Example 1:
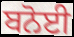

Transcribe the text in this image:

ਬਨੋਈ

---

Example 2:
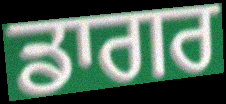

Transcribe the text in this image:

ਡਾਗਰ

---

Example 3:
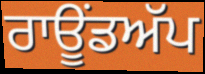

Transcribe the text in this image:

ਰਾਊਂਡਅੱਪ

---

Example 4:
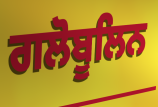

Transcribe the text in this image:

ਗਲੋਬੂਲਿਨ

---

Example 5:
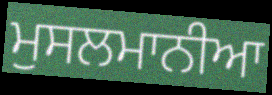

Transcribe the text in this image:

ਮੁਸਲਮਾਨੀਆ